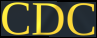
CDC